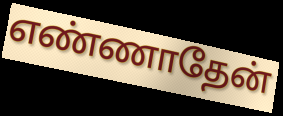
எண்ணாதேன்